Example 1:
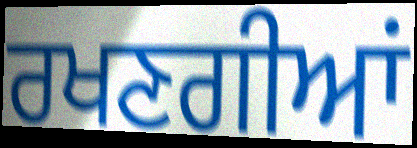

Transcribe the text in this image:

ਰਖਣਗੀਆਂ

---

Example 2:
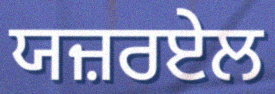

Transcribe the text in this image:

ਯਜ਼ਰਏਲ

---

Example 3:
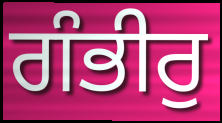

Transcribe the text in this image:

ਗੰਭੀਰੁ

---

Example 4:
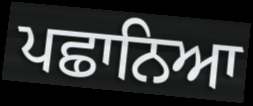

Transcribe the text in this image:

ਪਛਾਨਿਆ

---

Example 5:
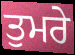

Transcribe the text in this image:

ਤੁਮਰੇ